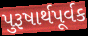
પુરૂષાર્થપૂર્વક